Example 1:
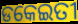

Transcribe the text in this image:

ଡକେଇତୀ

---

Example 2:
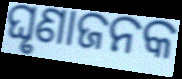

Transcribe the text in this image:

ଘୃଣାଜନକ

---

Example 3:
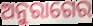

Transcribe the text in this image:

ଅନୁରାଗେର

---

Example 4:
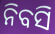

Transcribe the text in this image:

ନିବସି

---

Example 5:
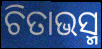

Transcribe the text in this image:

ଚିତାଭସ୍ମ